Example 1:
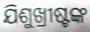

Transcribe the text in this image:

ଯିଶୁଖ୍ରୀଷ୍ଟଙ୍କ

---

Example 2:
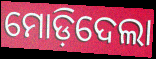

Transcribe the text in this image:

ମୋଡ଼ିଦେଲା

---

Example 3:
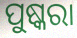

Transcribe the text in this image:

ପୁଷ୍କରା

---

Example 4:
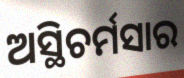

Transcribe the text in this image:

ଅସ୍ଥିଚର୍ମସାର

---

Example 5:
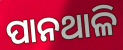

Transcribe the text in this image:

ପାନଥାଳି